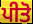
ਪੀਤੋ